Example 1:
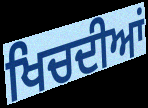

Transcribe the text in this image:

ਖਿਚਦੀਆਂ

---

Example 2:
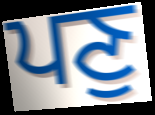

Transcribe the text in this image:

ਪਣੁ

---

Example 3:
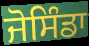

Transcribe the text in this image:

ਜੋਸਿੰਡਾ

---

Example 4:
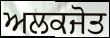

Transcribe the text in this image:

ਅਲਕਜੋਤ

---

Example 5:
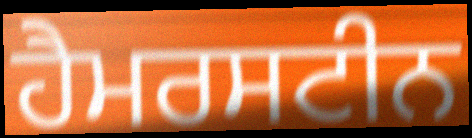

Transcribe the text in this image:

ਹੈਮਰਸਟੀਨ